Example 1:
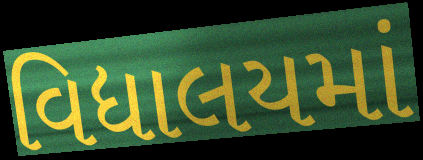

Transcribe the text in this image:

વિદ્યાલયમાં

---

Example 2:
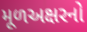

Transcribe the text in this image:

મૂળઅક્ષરનો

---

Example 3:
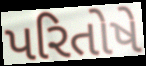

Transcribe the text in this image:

પરિતોષે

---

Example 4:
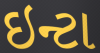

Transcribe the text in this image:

ઇન્ટા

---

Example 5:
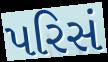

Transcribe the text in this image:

પરિસં